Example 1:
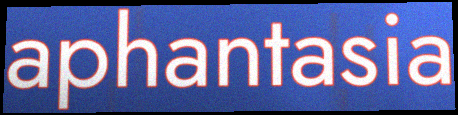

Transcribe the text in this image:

aphantasia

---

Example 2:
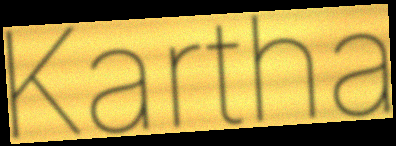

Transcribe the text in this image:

Kartha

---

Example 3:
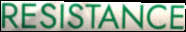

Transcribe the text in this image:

RESISTANCE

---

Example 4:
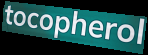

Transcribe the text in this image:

tocopherol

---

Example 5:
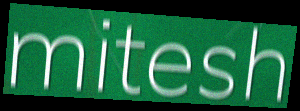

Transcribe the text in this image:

mitesh